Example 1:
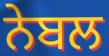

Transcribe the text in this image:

ਨੇਬਲ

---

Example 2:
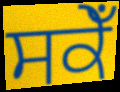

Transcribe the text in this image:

ਸਕੇਁ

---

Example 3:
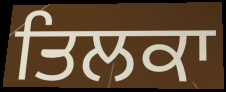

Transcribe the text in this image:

ਤਿਲਕਾ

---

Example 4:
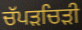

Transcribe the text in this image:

ਚੱਪੜਚਿੜੀ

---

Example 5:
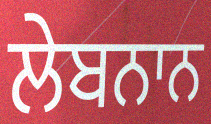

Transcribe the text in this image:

ਲੇਬਨਾਨ